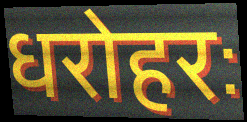
धरोहरः